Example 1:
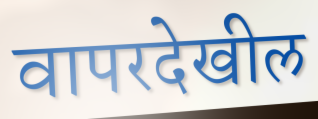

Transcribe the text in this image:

वापरदेखील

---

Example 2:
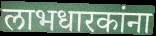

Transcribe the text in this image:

लाभधारकांना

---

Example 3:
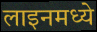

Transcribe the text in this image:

लाइनमध्ये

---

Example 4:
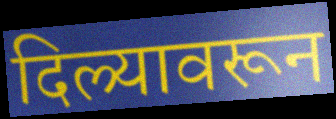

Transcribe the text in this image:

दिल्यावरून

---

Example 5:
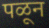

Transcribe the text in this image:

पळून